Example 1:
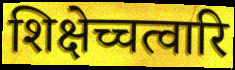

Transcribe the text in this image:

शिक्षेच्चत्वारि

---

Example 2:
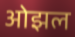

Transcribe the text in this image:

ओझल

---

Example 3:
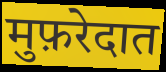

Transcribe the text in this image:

मुफ़रेदात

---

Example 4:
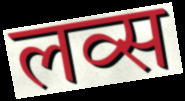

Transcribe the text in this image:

लव्स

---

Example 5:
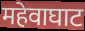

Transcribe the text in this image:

महेवाघाट